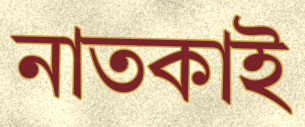
নাতকাই